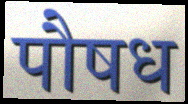
पौषध